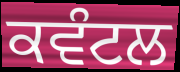
ਕਵੰਟਲ